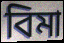
বিমা